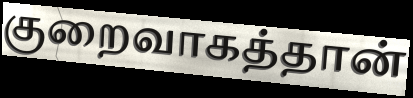
குறைவாகத்தான்